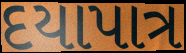
દયાપાત્ર